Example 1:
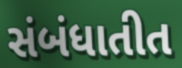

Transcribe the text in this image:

સંબંધાતીત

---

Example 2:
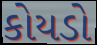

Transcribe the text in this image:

કોયડો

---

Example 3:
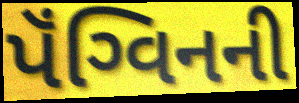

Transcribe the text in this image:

પૅંગ્વિનની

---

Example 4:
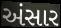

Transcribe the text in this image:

અંસાર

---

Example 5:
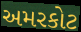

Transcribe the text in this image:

અમરકોટ